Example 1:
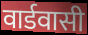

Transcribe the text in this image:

वार्डवासी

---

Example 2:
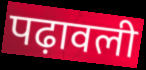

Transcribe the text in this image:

पढ़ावली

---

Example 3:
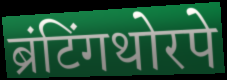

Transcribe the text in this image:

ब्रंटिंगथोरपे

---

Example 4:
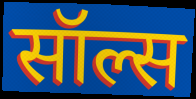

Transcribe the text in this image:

सॉल्स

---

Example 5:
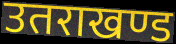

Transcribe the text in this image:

उतराखण्ड